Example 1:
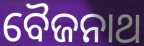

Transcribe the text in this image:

ବୈଜନାଥ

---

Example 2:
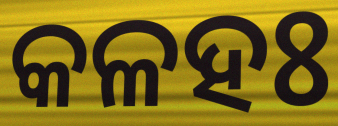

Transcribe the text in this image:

କଳହଃ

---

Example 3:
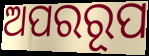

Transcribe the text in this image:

ଅପରରୂପ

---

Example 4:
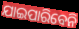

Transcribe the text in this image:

ଯାଇପାରିବେନି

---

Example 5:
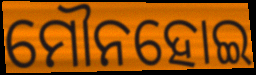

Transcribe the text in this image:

ମୌନହୋଇ